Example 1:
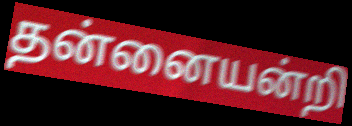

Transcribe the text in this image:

தன்னையன்றி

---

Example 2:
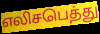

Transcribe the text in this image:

எலிசபெத்து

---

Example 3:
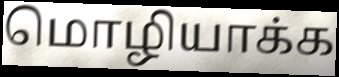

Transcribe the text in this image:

மொழியாக்க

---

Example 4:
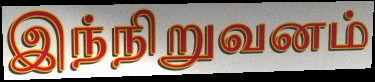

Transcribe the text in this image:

இந்நிறுவனம்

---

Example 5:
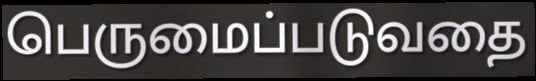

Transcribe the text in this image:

பெருமைப்படுவதை